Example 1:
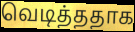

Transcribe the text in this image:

வெடித்ததாக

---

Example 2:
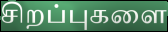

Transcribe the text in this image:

சிறப்புகளை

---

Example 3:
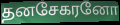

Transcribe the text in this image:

தனசேகரனோ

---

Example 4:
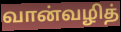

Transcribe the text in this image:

வான்வழித்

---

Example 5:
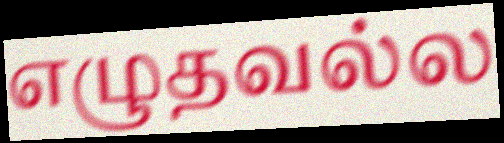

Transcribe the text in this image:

எழுதவல்ல